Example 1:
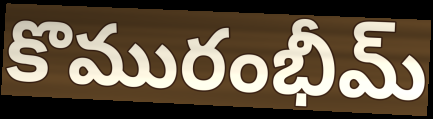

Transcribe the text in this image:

కొమురంభీమ్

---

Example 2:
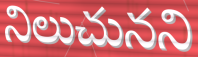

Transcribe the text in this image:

నిలుచునని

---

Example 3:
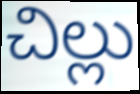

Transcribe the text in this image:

చిల్లు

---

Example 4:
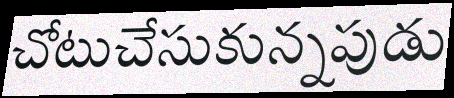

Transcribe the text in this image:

చోటుచేసుకున్నపుడు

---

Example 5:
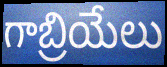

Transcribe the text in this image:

గాబ్రియేలు